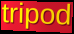
tripod